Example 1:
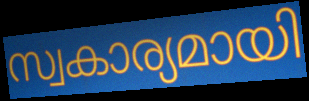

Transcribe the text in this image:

സ്വകാര്യമായി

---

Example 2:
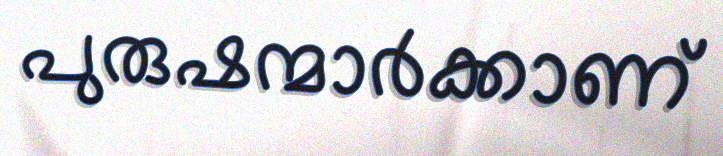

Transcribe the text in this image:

പുരുഷന്മാർക്കാണ്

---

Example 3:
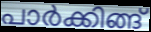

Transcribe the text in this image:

പാർക്കിങ്ങ്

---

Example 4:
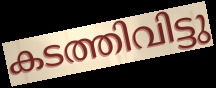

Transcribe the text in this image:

കടത്തിവിട്ടു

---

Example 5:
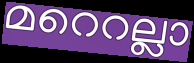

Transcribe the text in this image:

മറെറല്ലാ